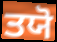
ਤਯੋ